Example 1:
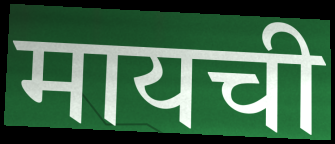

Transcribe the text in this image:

मायची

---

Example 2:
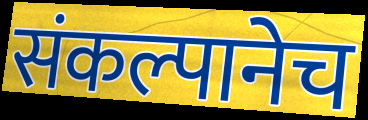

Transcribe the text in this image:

संकल्पानेच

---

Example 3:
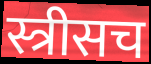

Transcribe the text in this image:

स्त्रीसच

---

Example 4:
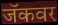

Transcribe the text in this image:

जॅकवर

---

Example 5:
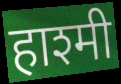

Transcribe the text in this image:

हाश्मी